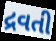
દ્રવતી